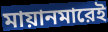
মায়ানমারেই